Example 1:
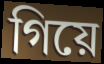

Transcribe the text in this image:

গিয়ে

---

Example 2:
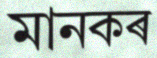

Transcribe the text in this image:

মানকৰ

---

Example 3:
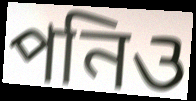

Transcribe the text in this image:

পনিও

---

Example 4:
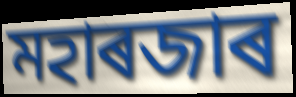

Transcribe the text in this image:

মহাৰজাৰ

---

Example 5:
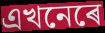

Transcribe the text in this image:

এখনেৰে